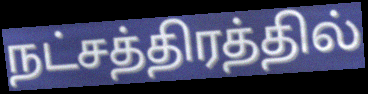
நட்சத்திரத்தில்